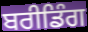
ਬਰੀਡਿੰਗ